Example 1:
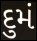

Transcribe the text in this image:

દુમં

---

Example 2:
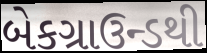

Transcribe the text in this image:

બેકગ્રાઉન્ડથી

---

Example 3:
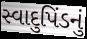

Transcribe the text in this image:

સ્વાદુપિંડનું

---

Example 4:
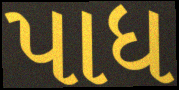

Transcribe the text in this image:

પાધ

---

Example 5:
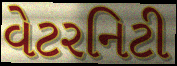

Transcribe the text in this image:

વેટરનિટી